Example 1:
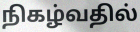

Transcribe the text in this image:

நிகழ்வதில்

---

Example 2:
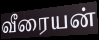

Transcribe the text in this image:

வீரையன்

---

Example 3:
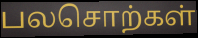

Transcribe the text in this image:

பலசொற்கள்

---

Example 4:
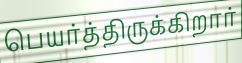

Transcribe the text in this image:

பெயர்த்திருக்கிறார்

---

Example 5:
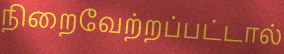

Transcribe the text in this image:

நிறைவேற்றப்பட்டால்